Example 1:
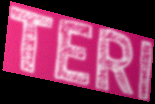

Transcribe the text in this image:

TERI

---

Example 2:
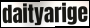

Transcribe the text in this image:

daityarige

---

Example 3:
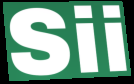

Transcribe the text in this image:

Sii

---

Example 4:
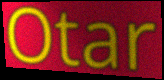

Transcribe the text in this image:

Otar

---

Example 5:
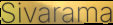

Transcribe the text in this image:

Sivarama